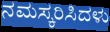
ನಮಸ್ಕರಿಸಿದಳು